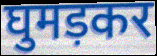
घुमड़कर